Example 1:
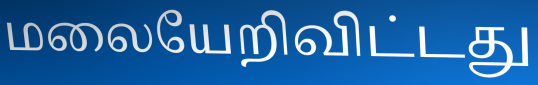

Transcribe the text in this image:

மலையேறிவிட்டது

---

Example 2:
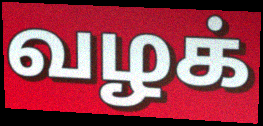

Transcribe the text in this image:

வழக்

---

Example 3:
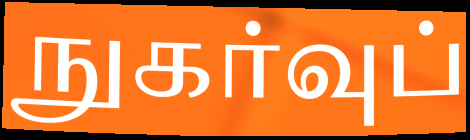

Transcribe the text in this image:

நுகர்வுப்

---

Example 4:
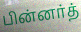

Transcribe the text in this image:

பின்னர்த்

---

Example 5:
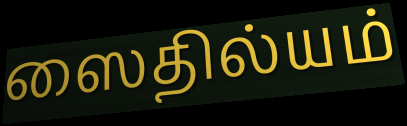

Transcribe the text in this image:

ஸைதில்யம்